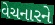
વેચનારને